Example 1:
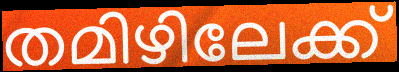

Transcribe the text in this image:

തമിഴിലേക്ക്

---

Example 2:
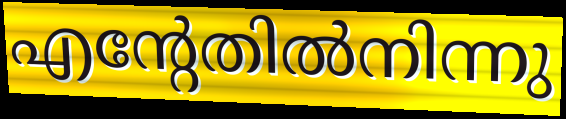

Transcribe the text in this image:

എന്റേതിൽനിന്നു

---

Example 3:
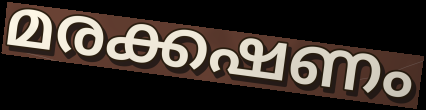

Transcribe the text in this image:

മരക്കഷണം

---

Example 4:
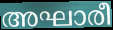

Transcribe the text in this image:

അഘാരീ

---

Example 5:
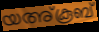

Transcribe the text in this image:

യഅ്കൂബ്